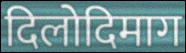
दिलोदिमाग